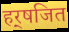
हर्षजित